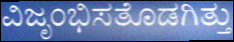
ವಿಜೃಂಭಿಸತೊಡಗಿತ್ತು